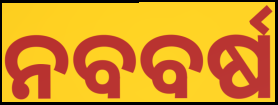
ନବବର୍ଷ